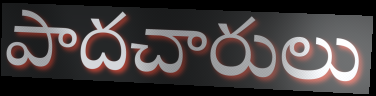
పాదచారులు